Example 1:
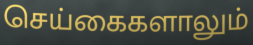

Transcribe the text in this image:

செய்கைகளாலும்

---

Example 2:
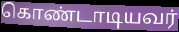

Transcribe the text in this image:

கொண்டாடியவர்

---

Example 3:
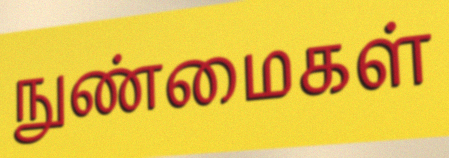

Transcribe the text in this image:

நுண்மைகள்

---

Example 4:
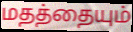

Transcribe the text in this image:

மதத்தையும்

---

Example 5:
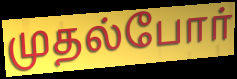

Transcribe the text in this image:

முதல்போர்